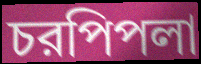
চরপিপলা